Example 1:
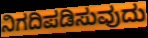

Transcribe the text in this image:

ನಿಗದಿಪಡಿಸುವುದು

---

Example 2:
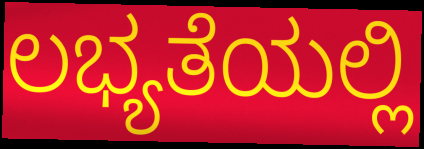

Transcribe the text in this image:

ಲಭ್ಯತೆಯಲ್ಲಿ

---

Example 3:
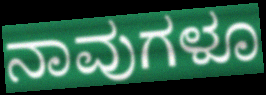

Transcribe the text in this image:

ನಾವುಗಳೂ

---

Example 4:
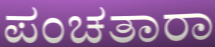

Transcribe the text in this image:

ಪಂಚತಾರಾ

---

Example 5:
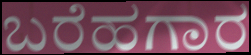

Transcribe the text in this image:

ಬರೆಹಗಾರ